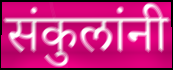
संकुलांनी